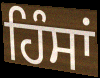
ਹਿੰਸਾਂ